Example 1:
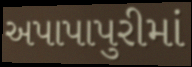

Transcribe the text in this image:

અપાપાપુરીમાં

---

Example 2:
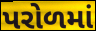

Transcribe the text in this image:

પરોળમાં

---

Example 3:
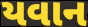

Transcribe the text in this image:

યવાન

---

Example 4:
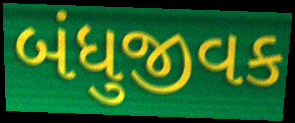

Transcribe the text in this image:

બંધુજીવક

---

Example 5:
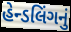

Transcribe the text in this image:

હેન્ડલિંગનું